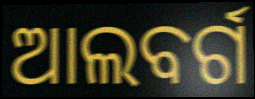
ଆଲବର୍ଗ